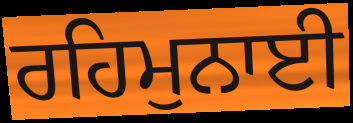
ਰਹਿਮੁਨਾਈ